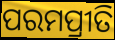
ପରମପ୍ରୀତି